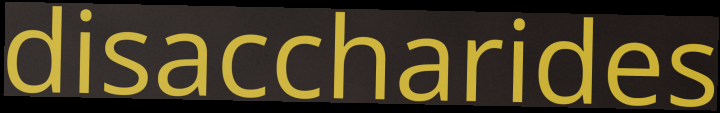
disaccharides